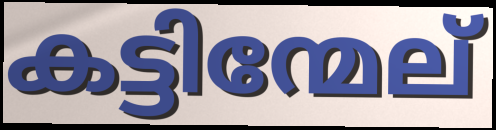
കട്ടിന്മേല്